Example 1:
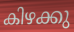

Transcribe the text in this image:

കിഴക്കു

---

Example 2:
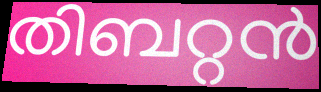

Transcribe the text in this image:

തിബറ്റൻ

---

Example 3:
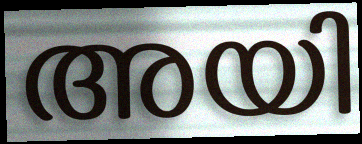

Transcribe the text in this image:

അയി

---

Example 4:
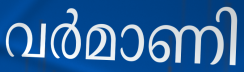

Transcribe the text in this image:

വർമാണി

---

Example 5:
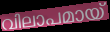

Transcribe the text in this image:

വിലാപമായ്